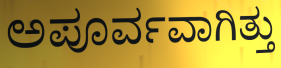
ಅಪೂರ್ವವಾಗಿತ್ತು